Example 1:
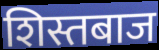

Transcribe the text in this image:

शिस्तबाज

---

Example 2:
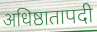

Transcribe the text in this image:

अधिष्ठातापदी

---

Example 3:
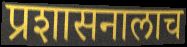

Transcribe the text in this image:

प्रशासनालाच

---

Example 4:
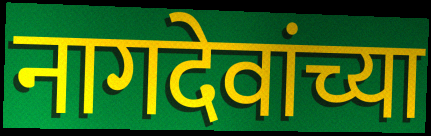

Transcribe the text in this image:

नागदेवांच्या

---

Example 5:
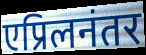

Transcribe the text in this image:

एप्रिलनंतर